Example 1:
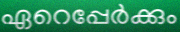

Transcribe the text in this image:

ഏറെപ്പേർക്കും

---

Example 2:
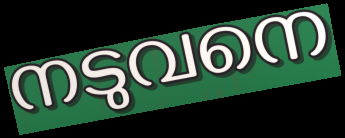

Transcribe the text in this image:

നടുവനെ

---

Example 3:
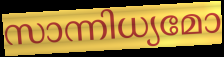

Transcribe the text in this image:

സാന്നിധ്യമോ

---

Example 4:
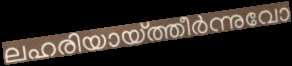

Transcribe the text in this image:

ലഹരിയായ്ത്തീർന്നുവോ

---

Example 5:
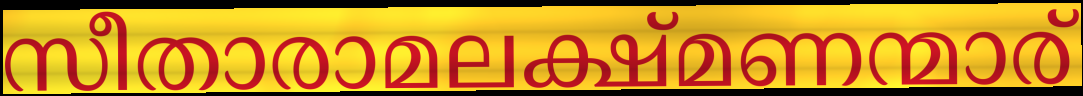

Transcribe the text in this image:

സീതാരാമലക്ഷ്മണന്മാര്